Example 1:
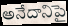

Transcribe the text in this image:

అనేదానిపై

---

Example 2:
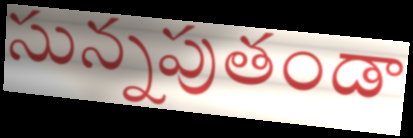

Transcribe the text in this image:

సున్నపుతండా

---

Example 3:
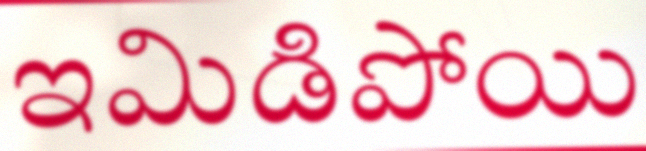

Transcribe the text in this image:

ఇమిడిపోయి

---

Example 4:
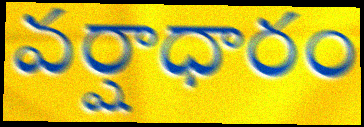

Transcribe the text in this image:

వర్షాధారం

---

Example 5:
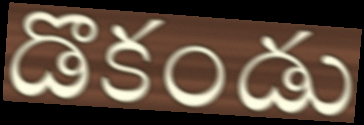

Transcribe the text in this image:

డొకండు